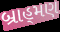
બ્રાહ્‌મણ